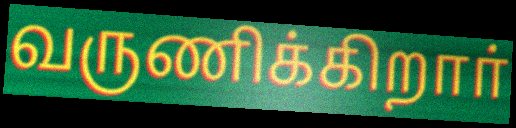
வருணிக்கிறார்